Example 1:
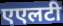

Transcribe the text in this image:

एएलटी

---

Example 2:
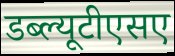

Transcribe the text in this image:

डब्ल्यूटीएसए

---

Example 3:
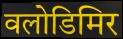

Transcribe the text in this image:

वलोडिमिर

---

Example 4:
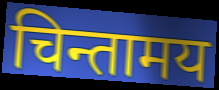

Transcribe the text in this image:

चिन्तामय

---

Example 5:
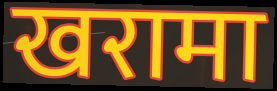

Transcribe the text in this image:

खरामा